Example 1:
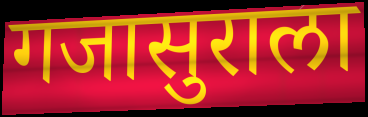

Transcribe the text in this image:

गजासुराला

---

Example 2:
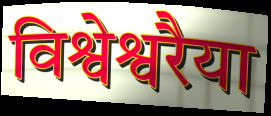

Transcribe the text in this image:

विश्वेश्वरैया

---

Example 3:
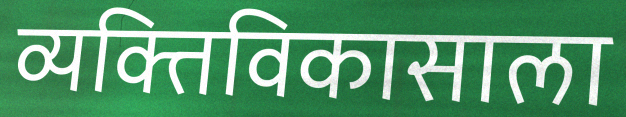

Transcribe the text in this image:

व्यक्तिविकासाला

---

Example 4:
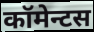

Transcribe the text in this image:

कॉमेन्टस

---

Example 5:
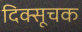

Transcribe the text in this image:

दिक्सूचक